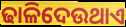
ଢାଳିଦେଉଥାଏ